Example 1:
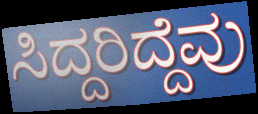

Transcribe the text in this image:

ಸಿದ್ದರಿದ್ದೆವು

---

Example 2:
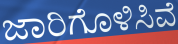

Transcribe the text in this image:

ಜಾರಿಗೊಳಿಸಿವೆ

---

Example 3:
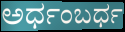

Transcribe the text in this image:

ಅರ್ಧಂಬರ್ಧ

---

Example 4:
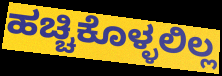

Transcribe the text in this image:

ಹಚ್ಚಿಕೊಳ್ಳಲಿಲ್ಲ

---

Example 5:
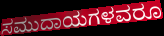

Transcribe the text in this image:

ಸಮುದಾಯಗಳವರೂ